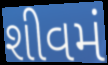
શીવમં